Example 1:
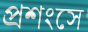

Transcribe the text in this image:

প্রশংসে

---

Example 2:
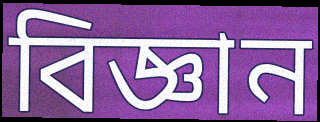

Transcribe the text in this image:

বিজ্ঞান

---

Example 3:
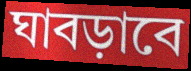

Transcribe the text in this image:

ঘাবড়াবে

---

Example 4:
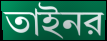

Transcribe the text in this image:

তাইনর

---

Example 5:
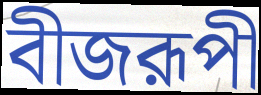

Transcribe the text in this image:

বীজরূপী